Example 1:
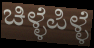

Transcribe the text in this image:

ಚಿಳ್ಳೆಪಿಳ್ಳೆ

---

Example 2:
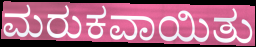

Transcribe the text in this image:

ಮರುಕವಾಯಿತು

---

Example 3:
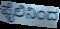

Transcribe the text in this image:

ಫೈಲಿನಿಂದ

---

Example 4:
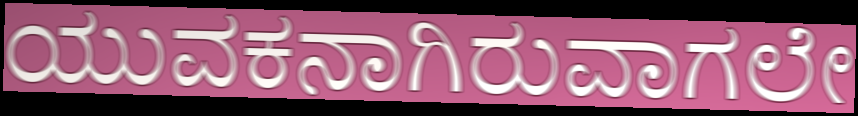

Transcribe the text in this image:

ಯುವಕನಾಗಿರುವಾಗಲೇ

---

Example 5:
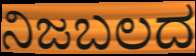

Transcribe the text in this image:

ನಿಜಬಲದ